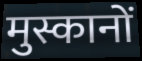
मुस्कानों